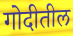
गोदीतील